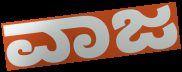
ವಾಜ